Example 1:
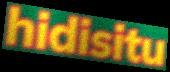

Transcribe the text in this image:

hidisitu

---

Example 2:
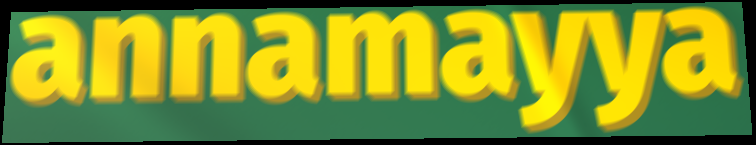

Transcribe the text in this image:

annamayya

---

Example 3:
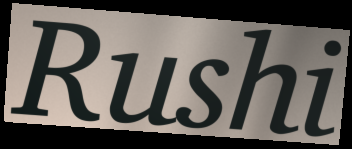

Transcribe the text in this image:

Rushi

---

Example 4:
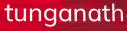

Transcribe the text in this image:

tunganath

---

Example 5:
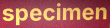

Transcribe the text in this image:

specimen